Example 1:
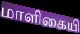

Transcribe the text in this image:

மாளிகையி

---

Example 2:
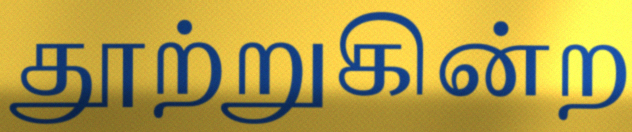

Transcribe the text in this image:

தூற்றுகின்ற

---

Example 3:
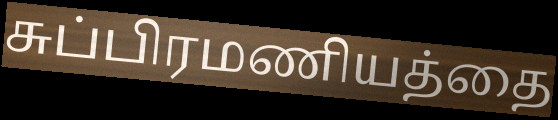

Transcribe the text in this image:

சுப்பிரமணியத்தை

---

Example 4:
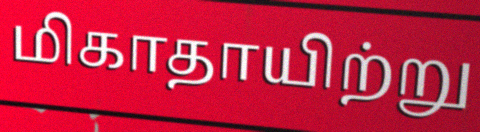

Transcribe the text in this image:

மிகாதாயிற்று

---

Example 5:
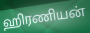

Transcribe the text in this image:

ஹிரணியன்